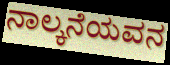
ನಾಲ್ಕನೆಯವನ